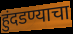
हुंदडण्याचा